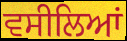
ਵਸੀਲਿਆਂ